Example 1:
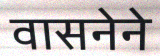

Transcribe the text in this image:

वासनेने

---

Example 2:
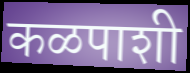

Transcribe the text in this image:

कळपाशी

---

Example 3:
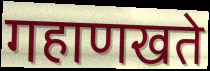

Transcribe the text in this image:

गहाणखते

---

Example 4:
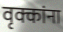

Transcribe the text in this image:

वृक्कांना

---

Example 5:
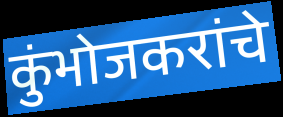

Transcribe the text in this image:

कुंभोजकरांचे